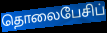
தொலைபேசிப்